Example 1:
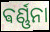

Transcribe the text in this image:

ଵର୍ଣ୍ଣନା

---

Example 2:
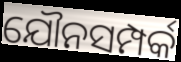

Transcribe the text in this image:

ଯୌନସମ୍ପର୍କ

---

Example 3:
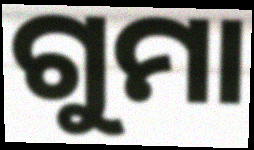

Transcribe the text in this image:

ଗୁମା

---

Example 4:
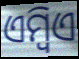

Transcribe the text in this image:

ଏମ୍ବିଏ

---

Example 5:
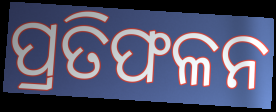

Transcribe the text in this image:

ପ୍ରତିଫଳନ